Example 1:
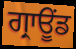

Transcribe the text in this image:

ਗ੍ਰਾਊਂਡ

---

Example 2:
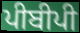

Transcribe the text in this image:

ਪੀਬੀਪੀ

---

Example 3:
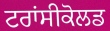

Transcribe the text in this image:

ਟਰਾਂਸੀਕੋਲਡ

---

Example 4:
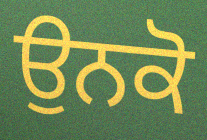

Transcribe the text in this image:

ਉਨਕੋ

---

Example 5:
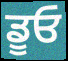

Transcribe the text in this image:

ਡੂਓ